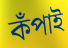
কঁপাই